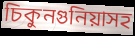
চিকুনগুনিয়াসহ